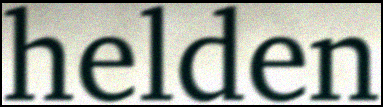
helden